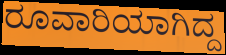
ರೂವಾರಿಯಾಗಿದ್ದ